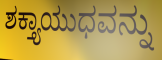
ಶಕ್ತ್ಯಾಯುಧವನ್ನು